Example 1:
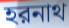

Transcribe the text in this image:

হরনাথ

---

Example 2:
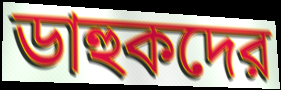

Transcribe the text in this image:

ডাহুকদের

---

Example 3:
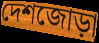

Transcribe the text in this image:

দেশজোড়া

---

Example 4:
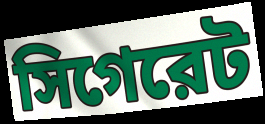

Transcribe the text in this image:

সিগেরেট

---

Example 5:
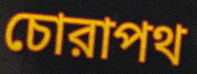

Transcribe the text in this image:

চোরাপথ